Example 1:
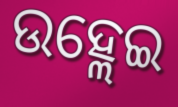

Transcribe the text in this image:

ଉହ୍ଲେଇ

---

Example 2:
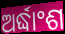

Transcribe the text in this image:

ଅର୍ଦ୍ଧାଂଶ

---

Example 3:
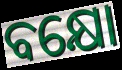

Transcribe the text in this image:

ବକ୍ଷୋ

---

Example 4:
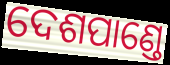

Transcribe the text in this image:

ଦେଶପାଣ୍ଡେ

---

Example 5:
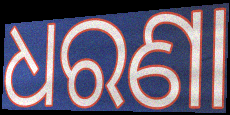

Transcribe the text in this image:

ଧରଣା